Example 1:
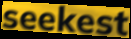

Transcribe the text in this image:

seekest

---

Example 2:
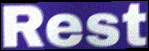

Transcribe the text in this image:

Rest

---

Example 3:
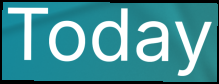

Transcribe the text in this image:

Today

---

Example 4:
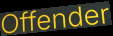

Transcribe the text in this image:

Offender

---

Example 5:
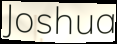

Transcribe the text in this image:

Joshua